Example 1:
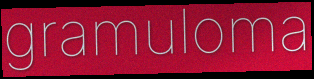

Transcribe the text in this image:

gramuloma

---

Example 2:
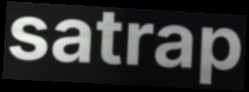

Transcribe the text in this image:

satrap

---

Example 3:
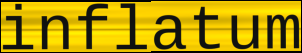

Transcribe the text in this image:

inflatum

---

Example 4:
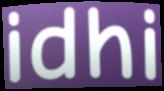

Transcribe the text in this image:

idhi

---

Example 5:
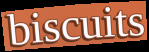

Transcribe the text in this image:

biscuits